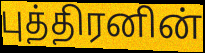
புத்திரனின்